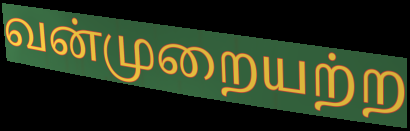
வன்முறையற்ற